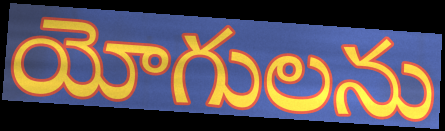
యోగులను